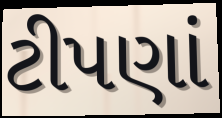
ટીપણાં